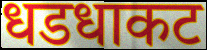
धडधाकट